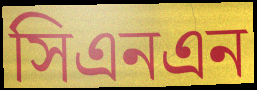
সিএনএন